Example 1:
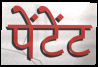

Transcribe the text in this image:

पेंटेंट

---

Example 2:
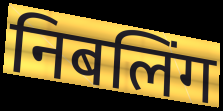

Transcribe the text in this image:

निबलिंग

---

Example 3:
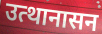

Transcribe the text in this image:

उत्थानासन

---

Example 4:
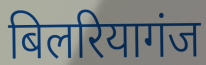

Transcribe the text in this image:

बिलरियागंज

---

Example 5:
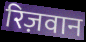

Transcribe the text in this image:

रिज़वान